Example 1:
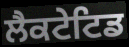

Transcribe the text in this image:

ਲੈਕਟੇਟਿਡ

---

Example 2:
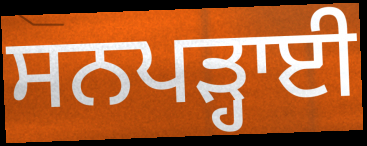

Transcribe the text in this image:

ਸਨਪੜ੍ਹਾਈ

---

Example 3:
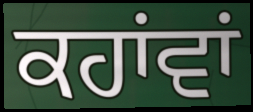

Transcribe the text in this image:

ਕਹਾਂਵਾਂ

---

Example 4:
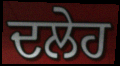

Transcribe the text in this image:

ਦਲੇਹ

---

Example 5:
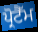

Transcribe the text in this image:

ਪ੍ਰੋਟੈੱਮ